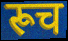
रूच